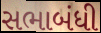
સભાબંધી